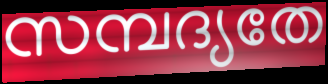
സമ്പദ്യതേ